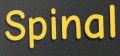
Spinal